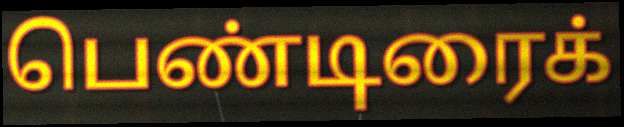
பெண்டிரைக்